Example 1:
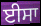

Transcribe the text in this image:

ਈਸਾ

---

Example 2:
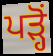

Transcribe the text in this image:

ਪੜ੍ਹੋਂ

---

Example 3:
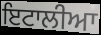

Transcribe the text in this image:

ਇਟਾਲੀਆ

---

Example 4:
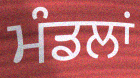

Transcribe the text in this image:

ਮੰਡਲਾਂ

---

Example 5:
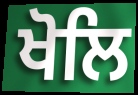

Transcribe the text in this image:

ਖੋਲਿ